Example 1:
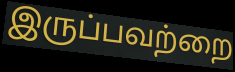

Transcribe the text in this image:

இருப்பவற்றை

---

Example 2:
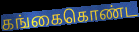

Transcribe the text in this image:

கங்கைகொண்ட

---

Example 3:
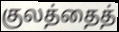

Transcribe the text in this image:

குலத்தைத்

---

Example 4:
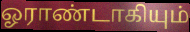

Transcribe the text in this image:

ஓராண்டாகியும்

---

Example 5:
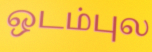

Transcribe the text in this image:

ஒடம்புல